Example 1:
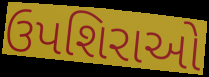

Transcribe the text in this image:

ઉપશિરાઓ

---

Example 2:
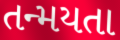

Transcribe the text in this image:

તન્મયતા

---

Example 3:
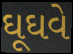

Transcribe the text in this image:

ઘૂઘવે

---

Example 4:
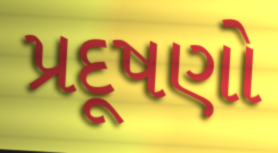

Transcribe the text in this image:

પ્રદૂષણો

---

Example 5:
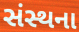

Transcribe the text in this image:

સંસ્થના